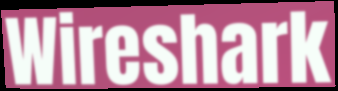
Wireshark